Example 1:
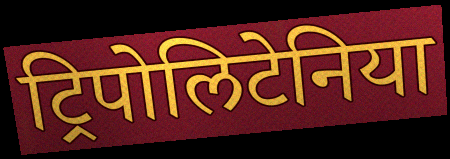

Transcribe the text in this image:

ट्रिपोलिटेनिया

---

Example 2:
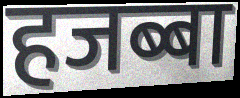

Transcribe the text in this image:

हजब्बा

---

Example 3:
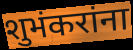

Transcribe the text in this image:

शुभंकरांना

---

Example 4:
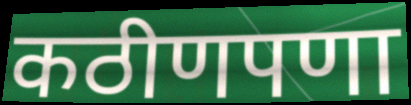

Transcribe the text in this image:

कठीणपणा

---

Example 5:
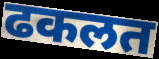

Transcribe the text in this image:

ढकलत